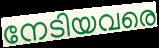
നേടിയവരെ